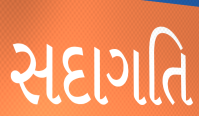
સદાગતિ